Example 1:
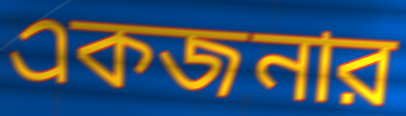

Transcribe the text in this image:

একজনার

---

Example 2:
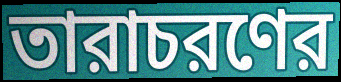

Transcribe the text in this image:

তারাচরণের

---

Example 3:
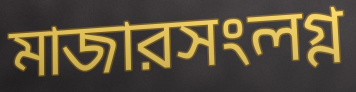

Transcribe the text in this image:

মাজারসংলগ্ন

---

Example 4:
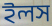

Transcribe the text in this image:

ইলস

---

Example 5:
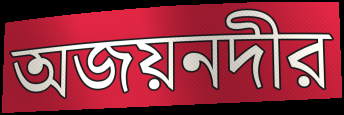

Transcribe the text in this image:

অজয়নদীর